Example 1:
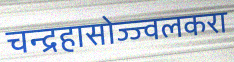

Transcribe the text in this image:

चन्द्रहासोज्ज्वलकरा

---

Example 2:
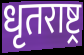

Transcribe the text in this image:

धृतराष्ट्र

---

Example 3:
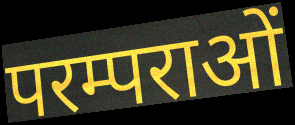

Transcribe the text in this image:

परम्पराओं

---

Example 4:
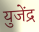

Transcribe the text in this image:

युजेंद्र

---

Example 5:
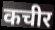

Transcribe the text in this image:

कचीर